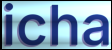
icha